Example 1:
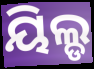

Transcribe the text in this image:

ୟିଲ୍ଡ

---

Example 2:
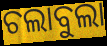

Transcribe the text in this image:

ଚଲାବୁଲା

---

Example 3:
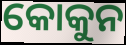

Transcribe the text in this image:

କୋକୁନ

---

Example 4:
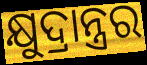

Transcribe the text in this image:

କ୍ଷୁଦ୍ରାନ୍ତ୍ରର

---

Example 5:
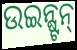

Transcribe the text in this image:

ଉଇନ୍ଷ୍ଟନ୍